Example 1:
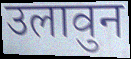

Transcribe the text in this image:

उलावुन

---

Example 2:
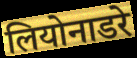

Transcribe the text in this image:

लियोनाडरे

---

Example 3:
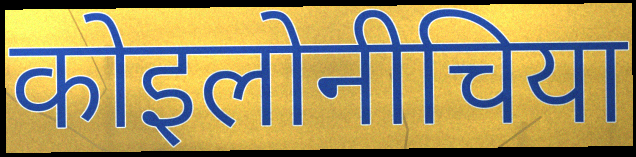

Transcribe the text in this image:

कोइलोनीचिया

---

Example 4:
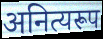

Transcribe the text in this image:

अनित्यरूप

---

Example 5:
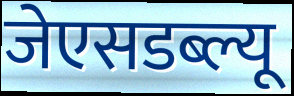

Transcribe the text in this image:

जेएसडब्ल्यू